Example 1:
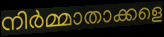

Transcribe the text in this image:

നിർമ്മാതാക്കളെ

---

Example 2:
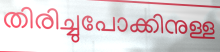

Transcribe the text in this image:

തിരിച്ചുപോക്കിനുള്ള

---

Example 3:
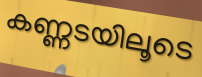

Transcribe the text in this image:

കണ്ണടയിലൂടെ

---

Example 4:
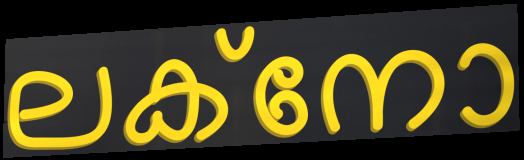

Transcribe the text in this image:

ലക്നോ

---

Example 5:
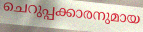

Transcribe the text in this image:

ചെറുപ്പക്കാരനുമായ